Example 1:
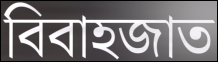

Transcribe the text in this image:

বিবাহজাত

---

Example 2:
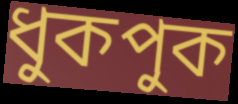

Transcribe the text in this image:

ধুকপুক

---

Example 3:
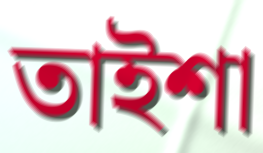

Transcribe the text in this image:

তাইশা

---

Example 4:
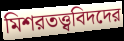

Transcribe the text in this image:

মিশরতত্ত্ববিদদের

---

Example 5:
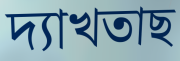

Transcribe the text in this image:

দ্যাখতাছ